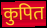
कुपित